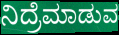
ನಿದ್ರೆಮಾಡುವ